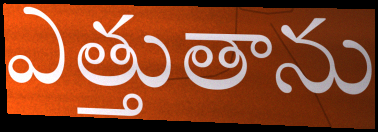
ఎత్తుతాను